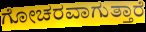
ಗೋಚರವಾಗುತ್ತಾರೆ